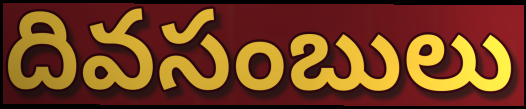
దివసంబులు